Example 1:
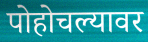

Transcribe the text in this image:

पोहोचल्यावर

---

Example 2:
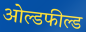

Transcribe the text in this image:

ओल्डफील्ड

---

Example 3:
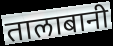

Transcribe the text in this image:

तालाबानी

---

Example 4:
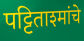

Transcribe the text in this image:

पट्टिताश्मांचे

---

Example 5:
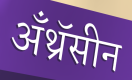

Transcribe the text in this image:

अँथ्रॅसीन